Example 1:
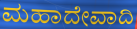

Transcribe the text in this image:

ಮಹಾದೇವಾದಿ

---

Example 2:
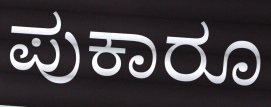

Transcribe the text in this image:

ಪುಕಾರೂ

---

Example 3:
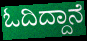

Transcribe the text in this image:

ಓದಿದ್ದಾನೆ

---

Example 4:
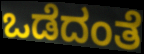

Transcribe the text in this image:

ಒಡೆದಂತೆ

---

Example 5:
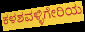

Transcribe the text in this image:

ಕಳಶವಳ್ಳಿಗೇರಿಯ